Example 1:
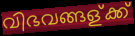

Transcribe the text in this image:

വിഭവങ്ങള്ക്ക്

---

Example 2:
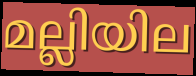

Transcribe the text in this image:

മല്ലിയില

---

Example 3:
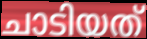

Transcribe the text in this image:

ചാടിയത്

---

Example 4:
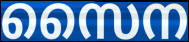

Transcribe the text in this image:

സൈന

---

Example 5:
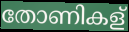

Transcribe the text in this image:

തോണികള്